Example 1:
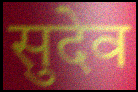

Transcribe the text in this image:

सुदेव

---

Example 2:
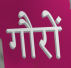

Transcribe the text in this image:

गौरों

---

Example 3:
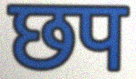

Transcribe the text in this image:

छप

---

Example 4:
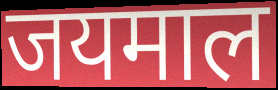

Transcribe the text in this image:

जयमाल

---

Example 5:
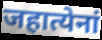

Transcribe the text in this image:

जहात्येनां